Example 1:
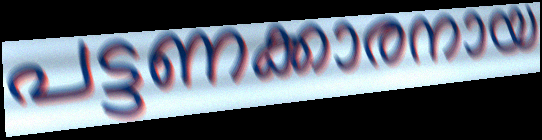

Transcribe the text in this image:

പട്ടണക്കാരനായ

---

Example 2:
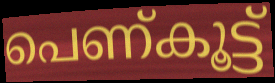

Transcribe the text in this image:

പെണ്കൂട്ട്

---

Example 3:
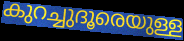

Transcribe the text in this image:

കുറച്ചുദൂരെയുള്ള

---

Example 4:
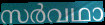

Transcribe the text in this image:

സർവഥാ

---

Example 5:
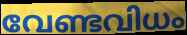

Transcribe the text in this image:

വേണ്ടവിധം